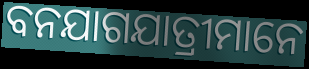
ବନଯାଗଯାତ୍ରୀମାନେ